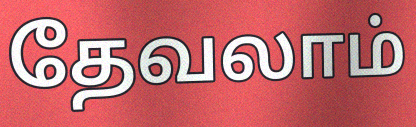
தேவலாம்